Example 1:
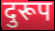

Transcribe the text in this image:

दुरूप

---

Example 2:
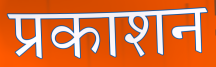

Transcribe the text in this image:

प्रकाशन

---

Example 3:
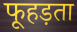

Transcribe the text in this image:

फूहड़ता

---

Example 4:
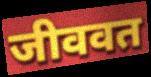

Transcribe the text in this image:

जीववत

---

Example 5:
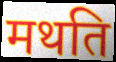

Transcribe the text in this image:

मथति